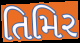
તિમિર